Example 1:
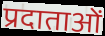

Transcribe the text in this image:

प्रदाताओं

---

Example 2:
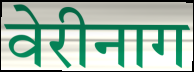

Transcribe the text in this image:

वेरीनाग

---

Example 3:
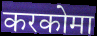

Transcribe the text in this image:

करकोमा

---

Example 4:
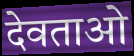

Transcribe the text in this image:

देवताओ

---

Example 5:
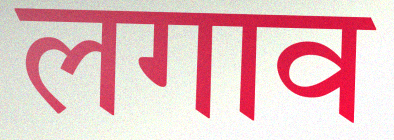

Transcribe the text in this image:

लगाव